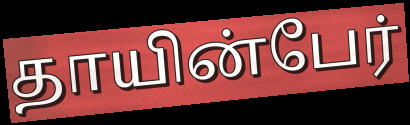
தாயின்பேர்